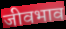
जीवभाव